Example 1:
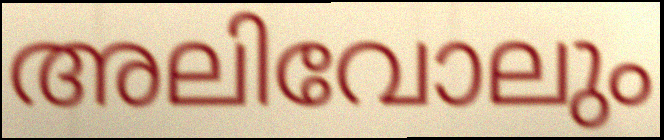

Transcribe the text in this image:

അലിവോലും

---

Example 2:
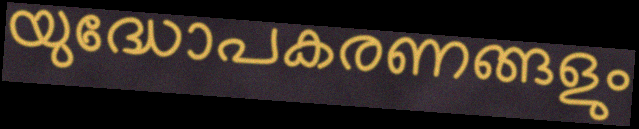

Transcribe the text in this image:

യുദ്ധോപകരണങ്ങളും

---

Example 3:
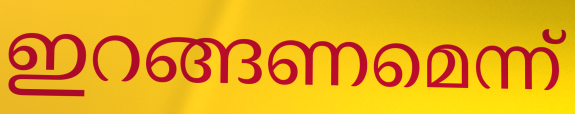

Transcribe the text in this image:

ഇറങ്ങണമെന്ന്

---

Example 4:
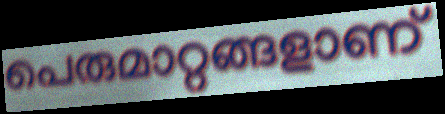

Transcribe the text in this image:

പെരുമാറ്റങ്ങളാണ്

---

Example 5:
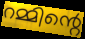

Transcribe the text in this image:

റമ്മിന്റെ